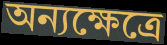
অন্যক্ষেত্রে